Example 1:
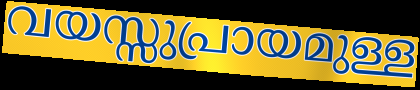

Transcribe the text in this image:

വയസ്സുപ്രായമുള്ള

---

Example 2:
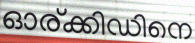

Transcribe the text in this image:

ഓര്ക്കിഡിനെ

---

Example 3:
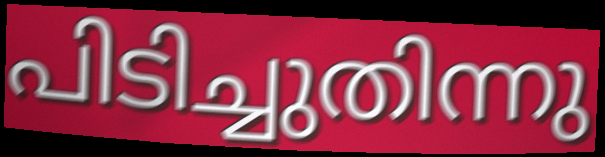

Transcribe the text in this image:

പിടിച്ചുതിന്നു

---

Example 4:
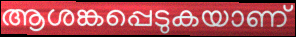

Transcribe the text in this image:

ആശങ്കപ്പെടുകയാണ്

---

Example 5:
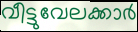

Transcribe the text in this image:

വീട്ടുവേലക്കാർ